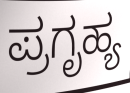
ಪ್ರಗೃಹ್ಯ